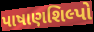
પાષાણશિલ્પો